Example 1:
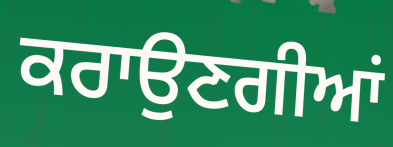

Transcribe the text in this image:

ਕਰਾਉਣਗੀਆਂ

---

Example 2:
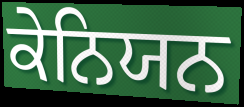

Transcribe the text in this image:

ਕੇਨਿਯਨ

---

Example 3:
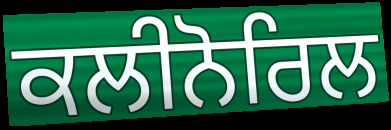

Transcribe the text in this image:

ਕਲੀਨੋਰਿਲ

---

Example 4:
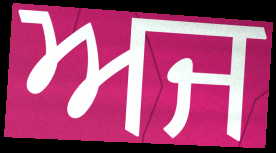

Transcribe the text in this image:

ਅਜ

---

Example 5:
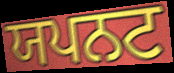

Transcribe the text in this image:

ਯਪਨਟ